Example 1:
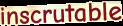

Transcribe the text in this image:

inscrutable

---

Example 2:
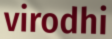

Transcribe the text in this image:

virodhi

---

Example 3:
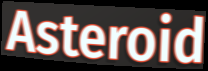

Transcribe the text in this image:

Asteroid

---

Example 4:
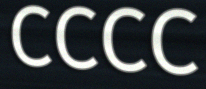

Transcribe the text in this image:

CCCC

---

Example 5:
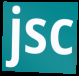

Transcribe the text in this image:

jsc